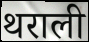
थराली